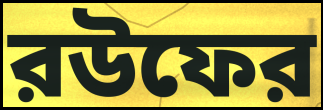
রউফের